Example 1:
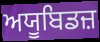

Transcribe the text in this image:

ਅਯੂਬਿਡਜ਼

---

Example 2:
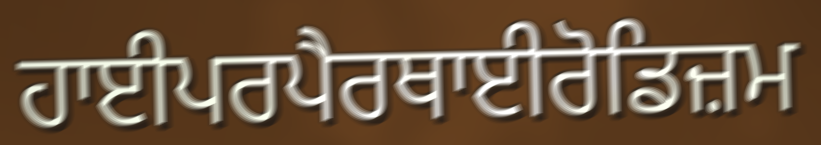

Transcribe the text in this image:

ਹਾਈਪਰਪੈਰਥਾਈਰੋਡਿਜ਼ਮ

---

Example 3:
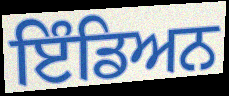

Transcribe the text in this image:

ਇੰਡਿਅਨ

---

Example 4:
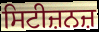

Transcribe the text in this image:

ਸਿਟੀਜ਼ਨਜ਼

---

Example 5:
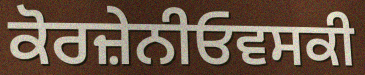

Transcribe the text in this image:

ਕੋਰਜ਼ੇਨੀਓਵਸਕੀ